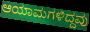
ಆಯಾಮಗಳಿದ್ದವು